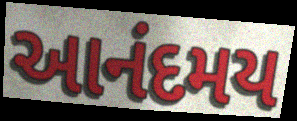
આનંદમય